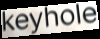
keyhole